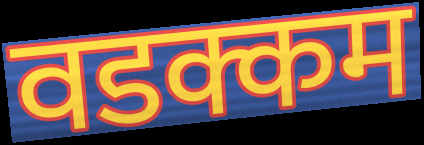
वडक्कम